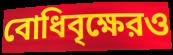
বোধিবৃক্ষেরও